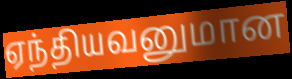
ஏந்தியவனுமான